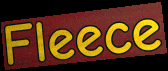
Fleece